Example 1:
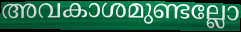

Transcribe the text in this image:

അവകാശമുണ്ടല്ലോ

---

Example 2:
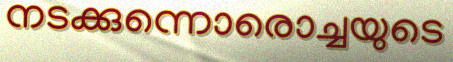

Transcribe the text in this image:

നടക്കുന്നൊരൊച്ചയുടെ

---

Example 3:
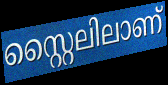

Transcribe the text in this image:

സ്റ്റൈലിലാണ്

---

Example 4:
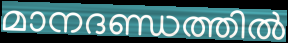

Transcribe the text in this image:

മാനദണ്ഡത്തിൽ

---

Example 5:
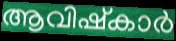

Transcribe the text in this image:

ആവിഷ്കാർ